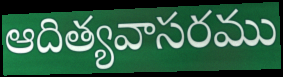
ఆదిత్యవాసరము